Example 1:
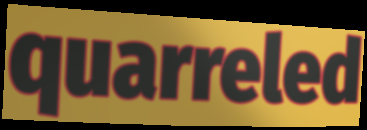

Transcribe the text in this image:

quarreled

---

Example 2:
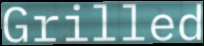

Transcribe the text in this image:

Grilled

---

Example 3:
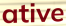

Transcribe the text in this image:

ative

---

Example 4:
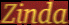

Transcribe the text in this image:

Zinda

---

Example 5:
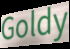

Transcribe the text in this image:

Goldy